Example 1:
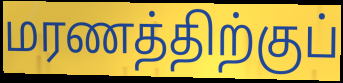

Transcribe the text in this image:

மரணத்திற்குப்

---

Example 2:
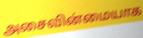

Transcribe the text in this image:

அசைவின்மையாக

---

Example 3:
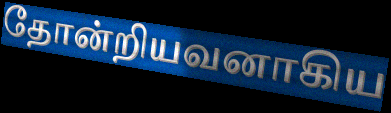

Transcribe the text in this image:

தோன்றியவனாகிய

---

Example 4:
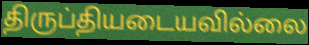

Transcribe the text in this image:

திருப்தியடையவில்லை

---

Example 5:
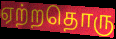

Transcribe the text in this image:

ஏற்றதொரு